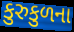
કુરુકુળના